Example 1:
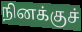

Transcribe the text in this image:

நினக்குச்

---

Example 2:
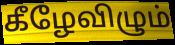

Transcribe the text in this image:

கீழேவிழும்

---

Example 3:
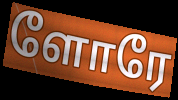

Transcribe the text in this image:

ளோரே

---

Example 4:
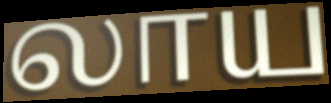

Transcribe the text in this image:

லாய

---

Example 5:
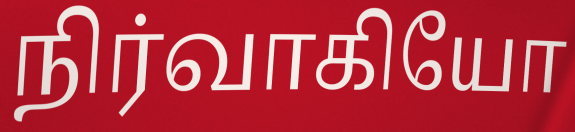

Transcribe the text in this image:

நிர்வாகியோ